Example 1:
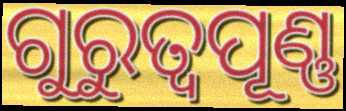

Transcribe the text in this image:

ଗୁରୁତ୍ବପୂଣ୍ଣ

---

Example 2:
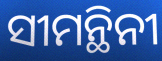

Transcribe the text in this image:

ସୀମନ୍ଥିନୀ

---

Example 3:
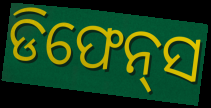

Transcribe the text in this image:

ଡିଫେନ୍‌ସ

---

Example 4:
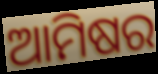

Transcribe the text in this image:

ଆମିଷର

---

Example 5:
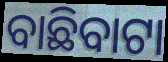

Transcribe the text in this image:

ବାଛିବାଟା